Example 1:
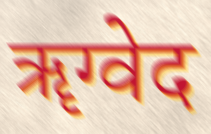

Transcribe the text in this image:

ॠग्वेद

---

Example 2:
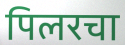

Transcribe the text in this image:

पिलरचा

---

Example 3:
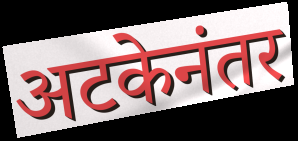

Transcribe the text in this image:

अटकेनंतर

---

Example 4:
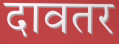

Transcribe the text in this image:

दावतर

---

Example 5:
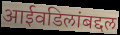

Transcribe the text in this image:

आईवडिलांबद्दल